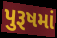
પુરૂષમાં